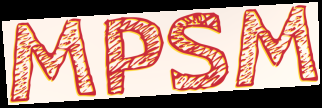
MPSM